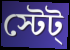
স্টেট্